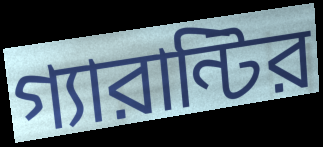
গ্যারান্টির